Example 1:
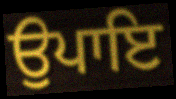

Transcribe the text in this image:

ਉਪਾਇ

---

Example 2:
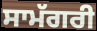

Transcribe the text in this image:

ਸਾਮੱਗਰੀ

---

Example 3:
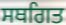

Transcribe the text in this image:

ਸਥਗਿਤ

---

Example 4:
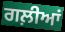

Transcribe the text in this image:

ਗਲ਼ੀਆਂ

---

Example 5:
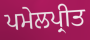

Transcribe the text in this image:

ਪਮੇਲਪ੍ਰੀਤ